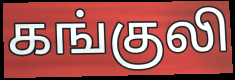
கங்குலி